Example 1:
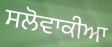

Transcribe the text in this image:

ਸਲੋਵਾਕੀਆ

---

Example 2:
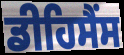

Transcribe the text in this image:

ਡੀਹਿਸੈਂਸ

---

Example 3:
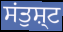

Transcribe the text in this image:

ਸਂਤੁਸ਼੍ਟ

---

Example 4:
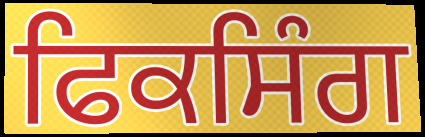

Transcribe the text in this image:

ਫਿਕਸਿੰਗ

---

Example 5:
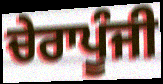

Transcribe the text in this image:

ਚੇਰਾਪੂੰਜੀ